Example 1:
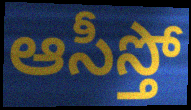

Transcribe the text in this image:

ఆసీస్తో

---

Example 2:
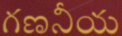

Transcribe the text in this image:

గణనీయ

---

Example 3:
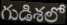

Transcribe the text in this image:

గుడిశలో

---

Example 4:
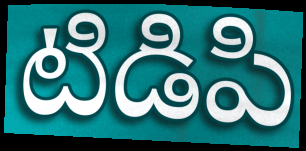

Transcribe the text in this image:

టిడిపి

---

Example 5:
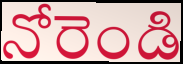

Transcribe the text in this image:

నోరెండి